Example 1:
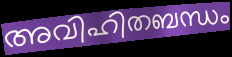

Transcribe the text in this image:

അവിഹിതബന്ധം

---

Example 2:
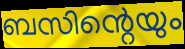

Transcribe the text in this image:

ബസിന്റെയും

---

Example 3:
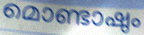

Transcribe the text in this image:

മൊണ്ടാഷും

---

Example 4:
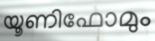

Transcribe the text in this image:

യൂണിഫോമും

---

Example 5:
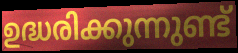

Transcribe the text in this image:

ഉദ്ധരിക്കുന്നുണ്ട്